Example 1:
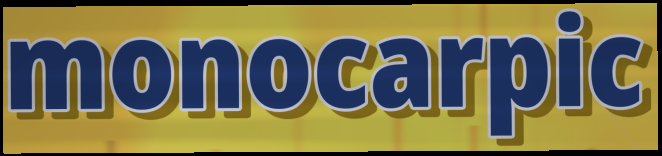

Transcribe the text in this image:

monocarpic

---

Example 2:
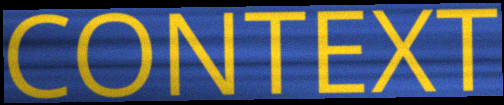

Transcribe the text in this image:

CONTEXT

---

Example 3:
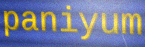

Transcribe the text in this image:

paniyum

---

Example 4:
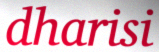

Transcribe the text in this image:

dharisi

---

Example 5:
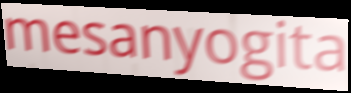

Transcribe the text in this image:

mesanyogita